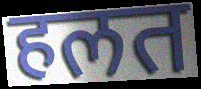
हलत